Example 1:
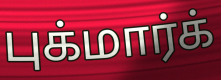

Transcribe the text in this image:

புக்மார்க்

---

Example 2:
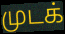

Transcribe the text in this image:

முடக்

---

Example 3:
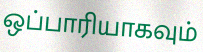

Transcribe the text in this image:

ஒப்பாரியாகவும்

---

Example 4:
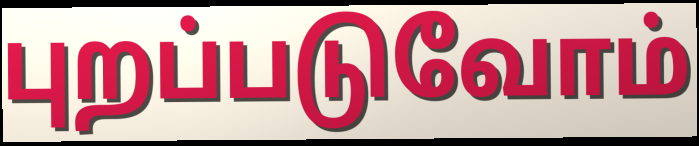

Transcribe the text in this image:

புறப்படுவோம்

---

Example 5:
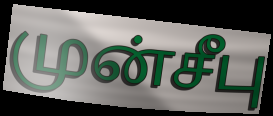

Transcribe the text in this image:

முன்சீபு